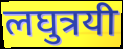
लघुत्रयी